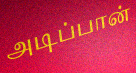
அடிப்பான்